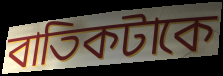
বাতিকটাকে